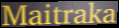
Maitraka